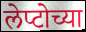
लेप्टोच्या